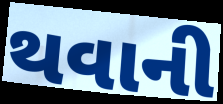
થવાની